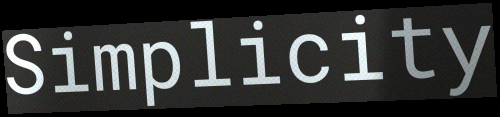
Simplicity